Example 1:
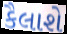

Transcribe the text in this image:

કૈલાશે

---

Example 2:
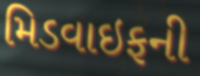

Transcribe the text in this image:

મિડવાઇફની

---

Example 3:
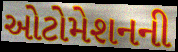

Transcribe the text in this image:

ઓટોમેશનની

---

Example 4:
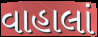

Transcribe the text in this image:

વાહાલાં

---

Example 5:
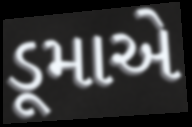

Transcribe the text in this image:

ડૂમાએ